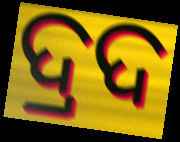
ଦ୍ରଦ